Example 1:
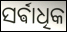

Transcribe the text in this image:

ସର୍ଵାଧିକ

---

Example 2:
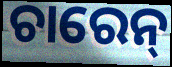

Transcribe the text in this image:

ଚାରେନ୍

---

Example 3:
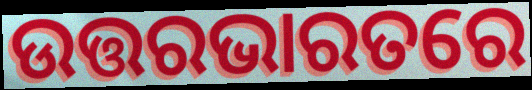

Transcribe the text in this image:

ଉତ୍ତରଭାରତରେ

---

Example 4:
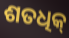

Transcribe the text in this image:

ଶତଧିକ୍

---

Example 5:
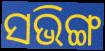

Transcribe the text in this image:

ସଭିଙ୍ଗ